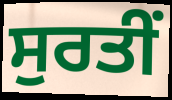
ਸੁਰਤੀਂ